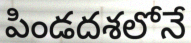
పిండదశలోనే